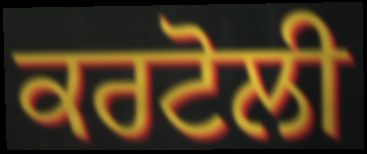
ਕਰਟੋਲੀ